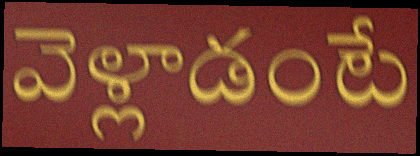
వెళ్లాడంటే